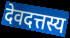
देवदत्तस्य